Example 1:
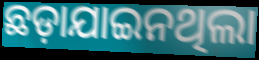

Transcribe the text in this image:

ଛଡ଼ାଯାଇନଥିଲା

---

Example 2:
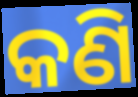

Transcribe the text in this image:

କଣି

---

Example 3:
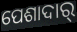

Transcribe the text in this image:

ପେଶାଦାର୍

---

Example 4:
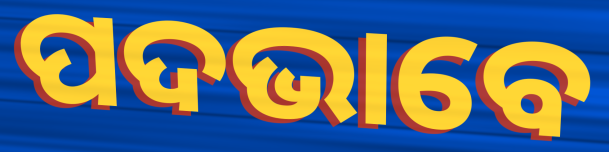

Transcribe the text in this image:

ପଦଭାବେ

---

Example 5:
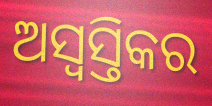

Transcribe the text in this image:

ଅସ୍ୱସ୍ତିକର